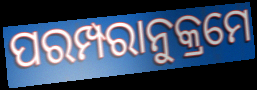
ପରମ୍ପରାନୁକ୍ରମେ